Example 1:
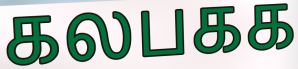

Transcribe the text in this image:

கலபகக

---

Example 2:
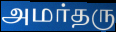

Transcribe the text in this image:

அமர்தரு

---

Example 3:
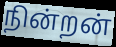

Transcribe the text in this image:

நின்றன்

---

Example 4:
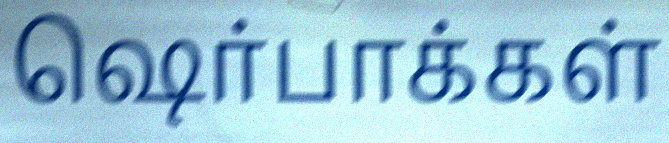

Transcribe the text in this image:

ஷெர்பாக்கள்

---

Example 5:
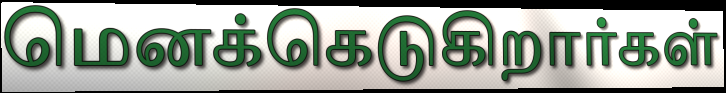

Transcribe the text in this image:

மெனக்கெடுகிறார்கள்